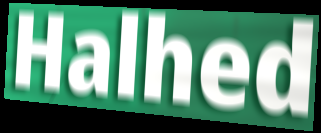
Halhed